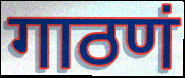
गाठणं